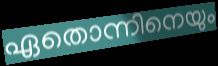
ഏതൊന്നിനെയും